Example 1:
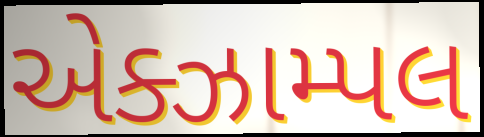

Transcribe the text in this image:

એક્ઝામ્પલ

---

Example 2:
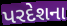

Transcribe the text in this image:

પરદેશના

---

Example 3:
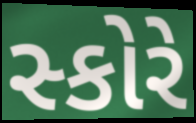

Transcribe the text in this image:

સ્કોરે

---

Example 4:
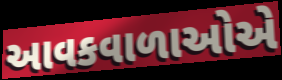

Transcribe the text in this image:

આવકવાળાઓએ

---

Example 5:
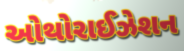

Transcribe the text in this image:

ઓથોરાઈઝેશન